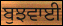
ਬੁਝਵਾਈ